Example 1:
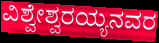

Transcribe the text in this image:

ವಿಶ್ವೇಶ್ವರಯ್ಯನವರ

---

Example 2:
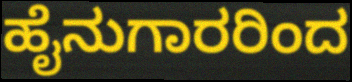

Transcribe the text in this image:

ಹೈನುಗಾರರಿಂದ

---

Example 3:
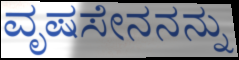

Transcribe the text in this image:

ವೃಷಸೇನನನ್ನು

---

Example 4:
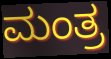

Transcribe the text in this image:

ಮಂತ್ರ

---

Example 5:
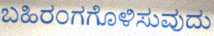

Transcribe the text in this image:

ಬಹಿರಂಗಗೊಳಿಸುವುದು